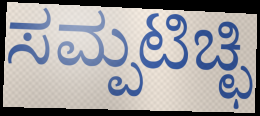
ಸಮ್ಪಟಿಚ್ಛಿ